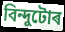
বিন্দুটোৰ